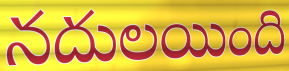
నదులయింది